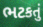
ભટકતું